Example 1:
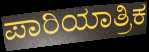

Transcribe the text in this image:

ಪಾರಿಯಾತ್ರಿಕ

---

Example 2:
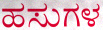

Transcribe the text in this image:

ಹಸುಗಳ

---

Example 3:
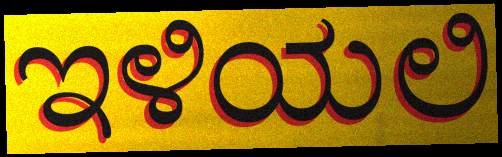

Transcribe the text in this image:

ಇಳಿಯಲಿ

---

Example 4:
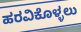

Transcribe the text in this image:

ಹರವಿಕೊಳ್ಳಲು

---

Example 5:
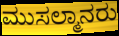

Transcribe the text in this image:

ಮುಸಲ್ಮಾನರು